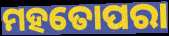
ମହତୋପରା